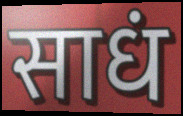
साधं